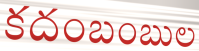
కదంబంబుల